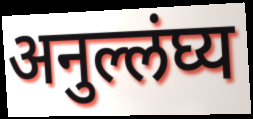
अनुल्लंघ्य